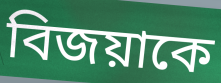
বিজয়াকে